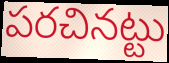
పరచినట్టు